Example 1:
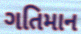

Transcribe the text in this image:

ગતિમાન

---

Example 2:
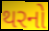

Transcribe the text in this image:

થરનો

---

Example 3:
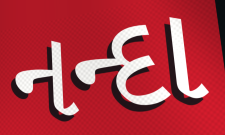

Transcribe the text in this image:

નન્દા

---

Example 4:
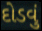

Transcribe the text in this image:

દોડવું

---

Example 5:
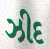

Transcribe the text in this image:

ઝીદ